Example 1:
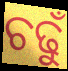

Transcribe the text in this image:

ଚଢୁଁ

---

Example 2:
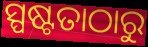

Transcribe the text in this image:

ସ୍ପଷ୍ଟତାଠାରୁ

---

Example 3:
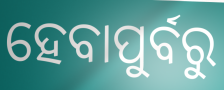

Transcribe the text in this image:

ହେବାପୁର୍ବରୁ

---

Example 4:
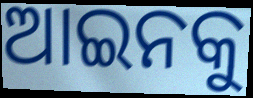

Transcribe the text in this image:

ଆଇନକୁ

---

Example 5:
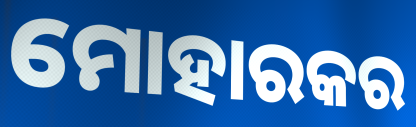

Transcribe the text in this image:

ମୋହାରକର